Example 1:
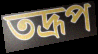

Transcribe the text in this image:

তদ্রূপ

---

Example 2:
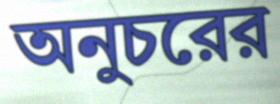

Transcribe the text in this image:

অনুচরের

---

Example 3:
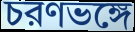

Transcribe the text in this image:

চরণভঙ্গে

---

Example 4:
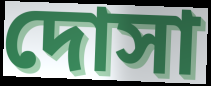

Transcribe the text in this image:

দোসা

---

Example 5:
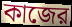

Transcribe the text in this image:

কাজের